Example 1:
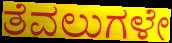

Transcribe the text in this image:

ತೆವಲುಗಳೇ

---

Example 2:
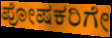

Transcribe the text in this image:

ಪೋಷಕರಿಗೇ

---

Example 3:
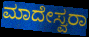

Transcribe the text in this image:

ಮಾದೇಸ್ವರಾ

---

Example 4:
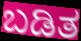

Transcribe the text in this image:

ಬಡಿತ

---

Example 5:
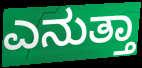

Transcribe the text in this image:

ಎನುತ್ತಾ